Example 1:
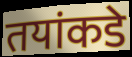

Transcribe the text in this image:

तयांकडे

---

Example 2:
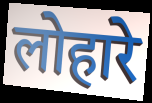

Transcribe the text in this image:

लोहारे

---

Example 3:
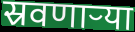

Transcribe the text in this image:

स्रवणाऱ्या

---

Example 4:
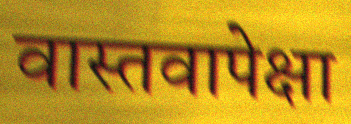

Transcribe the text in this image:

वास्तवापेक्षा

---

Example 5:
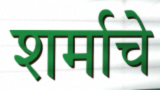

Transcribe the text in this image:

शर्माचे